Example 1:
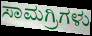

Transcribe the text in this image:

ಸಾಮಗ್ರಿಗಳು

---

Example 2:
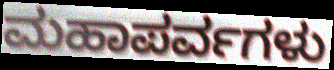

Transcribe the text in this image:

ಮಹಾಪರ್ವಗಳು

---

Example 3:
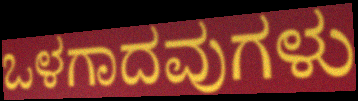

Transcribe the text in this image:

ಒಳಗಾದವುಗಳು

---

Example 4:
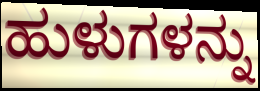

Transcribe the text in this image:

ಹುಳುಗಳನ್ನು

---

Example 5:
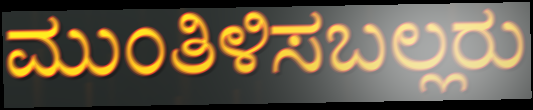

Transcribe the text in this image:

ಮುಂತಿಳಿಸಬಲ್ಲರು